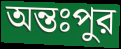
অন্তঃপুর